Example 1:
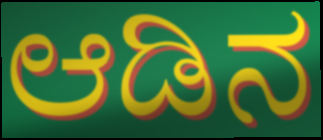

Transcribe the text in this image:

ಆಡಿನ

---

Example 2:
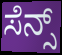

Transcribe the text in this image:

ಸೆನ್ಸ್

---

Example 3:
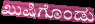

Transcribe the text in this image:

ಖುಷಿಗೊಂಡು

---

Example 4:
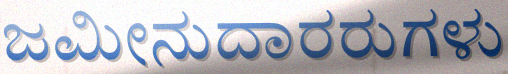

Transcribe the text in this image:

ಜಮೀನುದಾರರುಗಳು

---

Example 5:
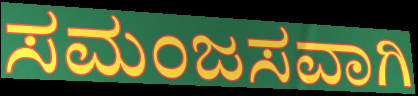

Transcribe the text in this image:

ಸಮಂಜಸವಾಗಿ